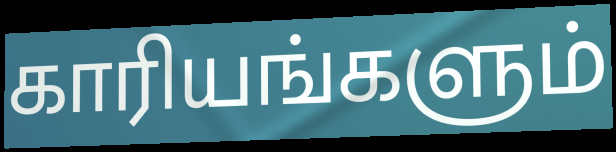
காரியங்களும்